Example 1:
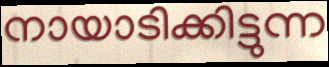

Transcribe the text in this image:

നായാടിക്കിട്ടുന്ന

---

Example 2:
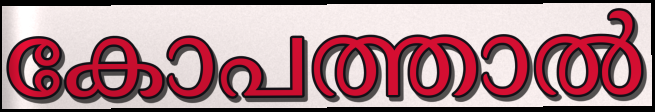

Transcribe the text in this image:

കോപത്താൽ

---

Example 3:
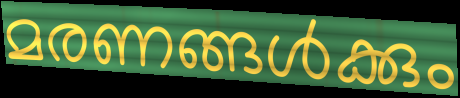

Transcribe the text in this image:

മരണങ്ങൾക്കും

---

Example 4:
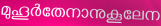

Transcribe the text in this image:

മുഹൂർതേനാനുകൂലേന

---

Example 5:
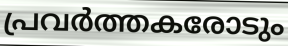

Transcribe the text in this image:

പ്രവർത്തകരോടും